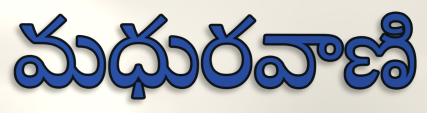
మధురవాణి